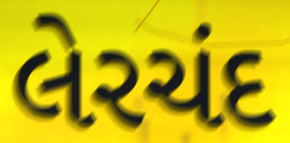
લેરચંદ